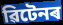
ৱিটেনৰ